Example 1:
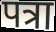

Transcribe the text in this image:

पत्रा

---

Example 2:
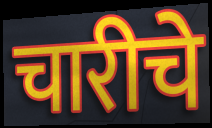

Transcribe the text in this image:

चारीचे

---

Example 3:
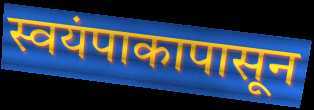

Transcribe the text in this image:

स्वयंपाकापासून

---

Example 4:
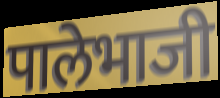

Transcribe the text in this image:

पालेभाजी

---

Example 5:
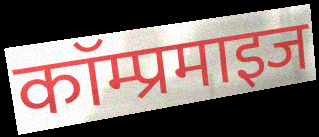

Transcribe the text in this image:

कॉम्प्रमाइज